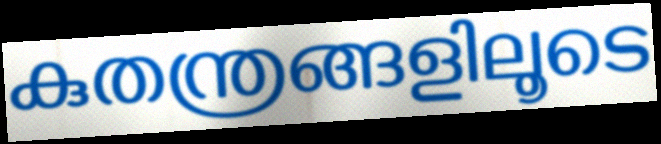
കുതന്ത്രങ്ങളിലൂടെ